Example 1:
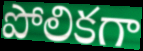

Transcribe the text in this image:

పోలికగా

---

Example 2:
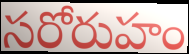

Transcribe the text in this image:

సరోరుహం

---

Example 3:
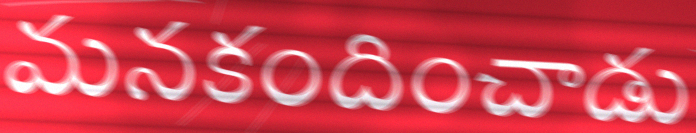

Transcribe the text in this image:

మనకందించాడు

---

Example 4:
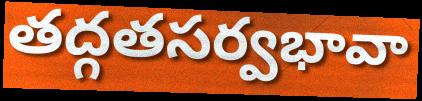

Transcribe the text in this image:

తద్గతసర్వభావా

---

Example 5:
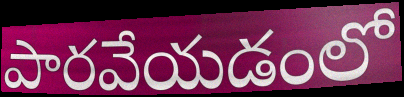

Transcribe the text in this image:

పారవేయడంలో